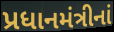
પ્રધાનમંત્રીનાં